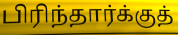
பிரிந்தார்க்குத்